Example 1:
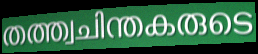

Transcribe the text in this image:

തത്ത്വചിന്തകരുടെ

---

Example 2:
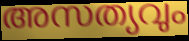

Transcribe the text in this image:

അസത്യവും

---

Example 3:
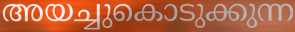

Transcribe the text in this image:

അയച്ചുകൊടുക്കുന്ന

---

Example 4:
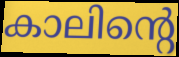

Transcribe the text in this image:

കാലിന്റെ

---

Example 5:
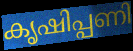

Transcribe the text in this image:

കൃഷിപ്പണി